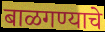
बाळगण्याचे